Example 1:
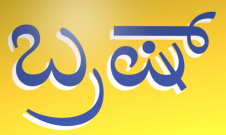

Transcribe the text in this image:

ಬ್ರಷ್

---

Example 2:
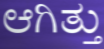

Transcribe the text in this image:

ಆಗಿತ್ತು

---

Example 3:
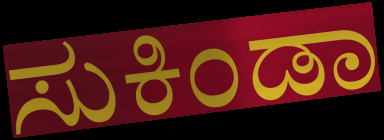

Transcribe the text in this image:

ಸುಕಿಂಡಾ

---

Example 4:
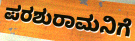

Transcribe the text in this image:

ಪರಶುರಾಮನಿಗೆ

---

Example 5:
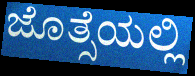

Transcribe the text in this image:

ಜೊತ್ಸೆಯಲ್ಲಿ